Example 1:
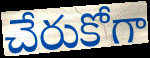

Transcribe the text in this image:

చేరుకోగా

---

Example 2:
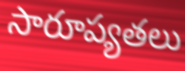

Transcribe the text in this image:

సారూప్యతలు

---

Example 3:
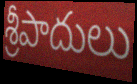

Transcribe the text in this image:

శ్రీపాదులు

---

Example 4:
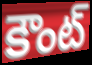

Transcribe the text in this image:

కౌంట్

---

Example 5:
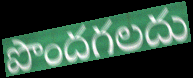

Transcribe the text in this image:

పొందగలదు